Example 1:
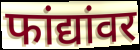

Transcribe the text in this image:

फांद्यांवर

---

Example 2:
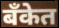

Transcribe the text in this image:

बँकेत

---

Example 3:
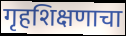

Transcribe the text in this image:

गृहशिक्षणाचा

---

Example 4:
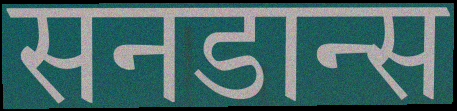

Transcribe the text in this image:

सनडान्स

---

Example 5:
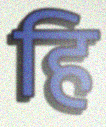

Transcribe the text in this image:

हि